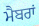
ਮੈਬਰਾਂ